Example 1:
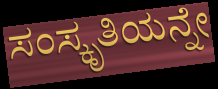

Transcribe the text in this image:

ಸಂಸ್ಕೃತಿಯನ್ನೇ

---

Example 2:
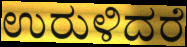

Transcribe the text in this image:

ಉರುಳಿದರೆ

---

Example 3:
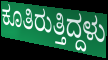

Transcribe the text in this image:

ಕೂತಿರುತ್ತಿದ್ದಳು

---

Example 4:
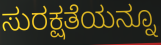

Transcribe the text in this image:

ಸುರಕ್ಷತೆಯನ್ನೂ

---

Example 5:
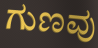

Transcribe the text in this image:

ಗುಣವು